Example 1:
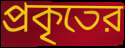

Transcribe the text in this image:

প্রকৃতের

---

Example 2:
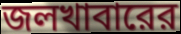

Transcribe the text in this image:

জলখাবারের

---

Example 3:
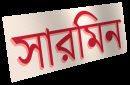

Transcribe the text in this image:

সারমিন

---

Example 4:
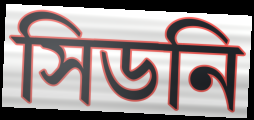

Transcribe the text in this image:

সিডনি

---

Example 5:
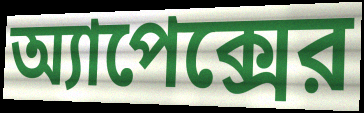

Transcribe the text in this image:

অ্যাপেক্সের